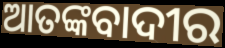
ଆତଙ୍କବାଦୀର